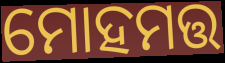
ମୋହମତ୍ତ